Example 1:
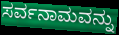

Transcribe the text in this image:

ಸರ್ವನಾಮವನ್ನು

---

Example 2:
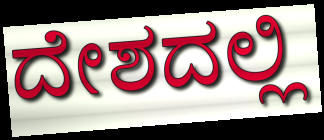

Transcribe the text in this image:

ದೇಶದಲ್ಲಿ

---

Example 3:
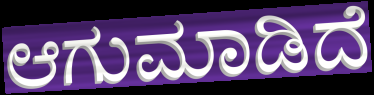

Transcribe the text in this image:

ಆಗುಮಾಡಿದೆ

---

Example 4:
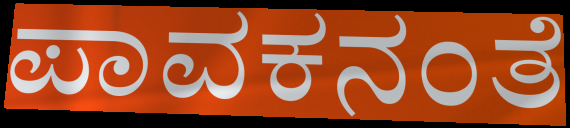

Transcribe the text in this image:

ಪಾವಕನಂತೆ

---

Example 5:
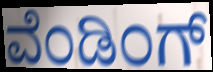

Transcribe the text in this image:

ವೆಂಡಿಂಗ್